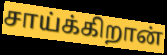
சாய்க்கிறான்